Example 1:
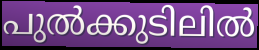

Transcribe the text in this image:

പുൽക്കുടിലിൽ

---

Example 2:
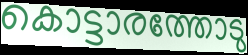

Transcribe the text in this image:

കൊട്ടാരത്തോടു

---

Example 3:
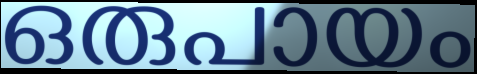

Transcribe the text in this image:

ഒരുപായം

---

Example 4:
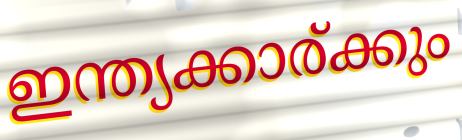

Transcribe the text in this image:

ഇന്ത്യക്കാര്ക്കും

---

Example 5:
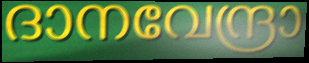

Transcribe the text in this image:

ദാനവേന്ദ്രാ